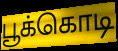
பூக்கொடி